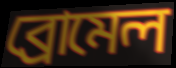
ব্রোমেল